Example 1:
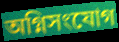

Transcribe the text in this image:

অগ্নিসংযোগ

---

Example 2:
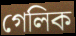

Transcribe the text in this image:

গেলিক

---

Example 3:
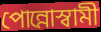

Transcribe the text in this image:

পোন্নোস্বামী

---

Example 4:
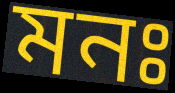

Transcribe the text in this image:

মনঃ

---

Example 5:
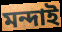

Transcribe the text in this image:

মন্দাই